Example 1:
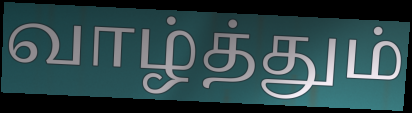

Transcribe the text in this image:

வாழ்த்தும்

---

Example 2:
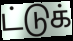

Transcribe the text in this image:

ட்டுக்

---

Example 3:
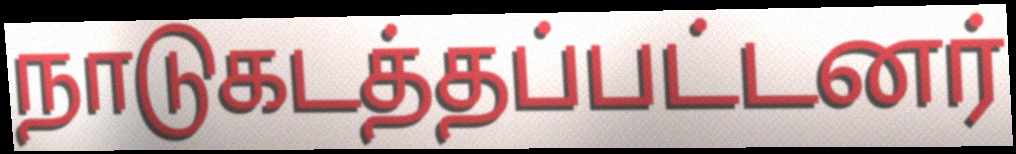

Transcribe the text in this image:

நாடுகடத்தப்பட்டனர்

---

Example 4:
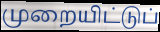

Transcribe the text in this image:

முறையிட்டுப்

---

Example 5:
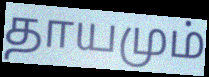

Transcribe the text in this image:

தாயமும்